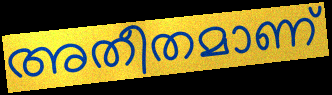
അതീതമാണ്